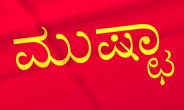
ಮುಷ್ಟಾ